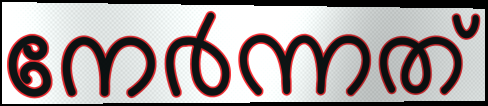
നേർന്നത്